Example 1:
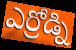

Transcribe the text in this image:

ఎర్రోడ్ని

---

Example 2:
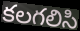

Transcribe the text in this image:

కలగలిసి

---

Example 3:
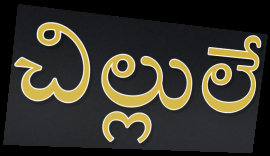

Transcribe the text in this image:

చిల్లులే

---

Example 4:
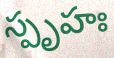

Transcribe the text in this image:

స్పృహః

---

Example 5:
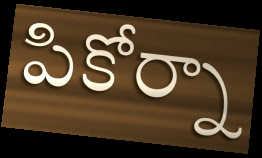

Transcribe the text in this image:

పికోర్నా